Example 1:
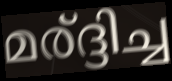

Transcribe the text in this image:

മര്ദ്ദിച്ച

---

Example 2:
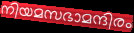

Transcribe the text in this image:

നിയമസഭാമന്ദിരം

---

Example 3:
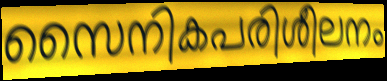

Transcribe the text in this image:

സൈനികപരിശീലനം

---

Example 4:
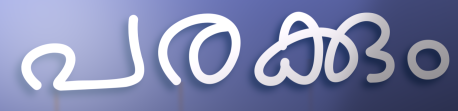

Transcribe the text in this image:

പരക്കും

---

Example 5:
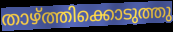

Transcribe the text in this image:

താഴ്ത്തിക്കൊടുത്തു